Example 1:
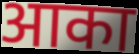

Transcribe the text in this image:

आका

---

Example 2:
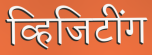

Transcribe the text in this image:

व्हिजिटींग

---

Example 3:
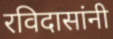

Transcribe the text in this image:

रविदासांनी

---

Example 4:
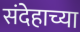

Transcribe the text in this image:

संदेहाच्या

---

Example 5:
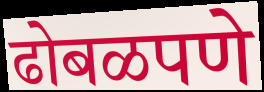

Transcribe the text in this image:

ढोबळपणे